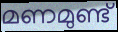
മണമുണ്ട്